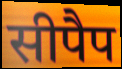
सीपैप